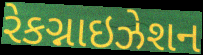
રેકગ્નાઇઝેશન